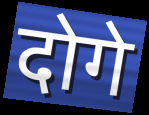
दोगे